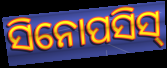
ସିନୋପସିସ୍